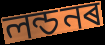
লন্ডনৰ